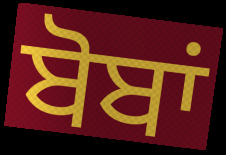
ਬੋਬਾਂ